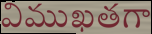
విముఖతగా